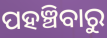
ପହଞ୍ଚିବାରୁ